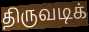
திருவடிக்